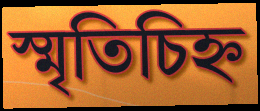
স্মৃতিচিহ্ন